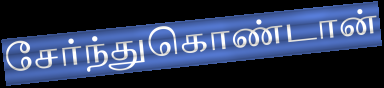
சேர்ந்துகொண்டான்